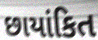
છાયાંકિત